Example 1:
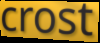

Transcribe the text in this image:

crost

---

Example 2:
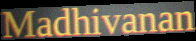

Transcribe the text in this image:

Madhivanan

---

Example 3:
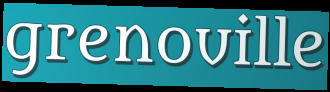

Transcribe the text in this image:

grenouille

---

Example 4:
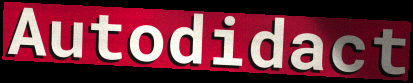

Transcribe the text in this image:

Autodidact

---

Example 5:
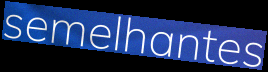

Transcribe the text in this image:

semelhantes